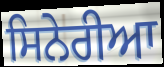
ਸਿਨੇਰੀਆ